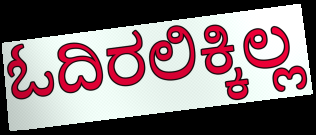
ಓದಿರಲಿಕ್ಕಿಲ್ಲ